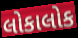
લોકાલોક